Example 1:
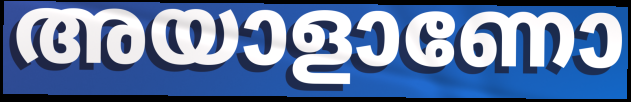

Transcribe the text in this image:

അയാളാണോ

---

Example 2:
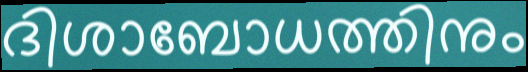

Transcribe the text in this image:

ദിശാബോധത്തിനും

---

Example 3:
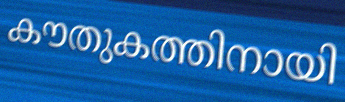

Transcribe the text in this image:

കൗതുകത്തിനായി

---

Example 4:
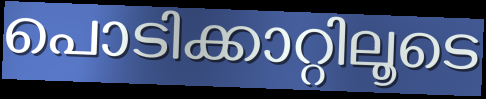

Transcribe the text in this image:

പൊടിക്കാറ്റിലൂടെ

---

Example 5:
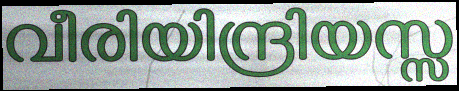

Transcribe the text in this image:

വീരിയിന്ദ്രിയസ്സ